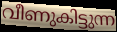
വീണുകിട്ടുന്ന